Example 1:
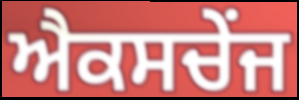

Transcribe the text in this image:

ਐਕਸਚੇਂਜ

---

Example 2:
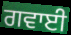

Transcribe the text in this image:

ਗਵਾਈ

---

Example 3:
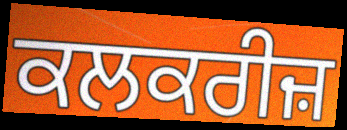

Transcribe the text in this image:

ਕਲਕਰੀਜ਼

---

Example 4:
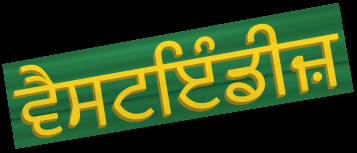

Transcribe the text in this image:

ਵੈਸਟਇੰਡੀਜ਼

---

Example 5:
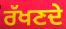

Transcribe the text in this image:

ਰੱਖਣਦੇ